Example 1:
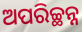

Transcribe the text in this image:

ଅପରିଚ୍ଛନ୍ନ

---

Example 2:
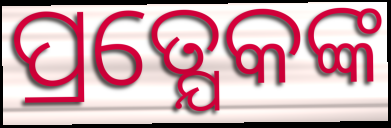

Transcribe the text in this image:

ପ୍ରତ୍ଯେକଙ୍କ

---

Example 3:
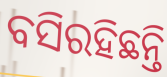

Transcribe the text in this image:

ବସିରହିଛନ୍ତି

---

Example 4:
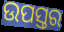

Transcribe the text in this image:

ଉପସ୍ତର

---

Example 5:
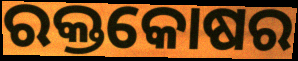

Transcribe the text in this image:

ରକ୍ତକୋଷର